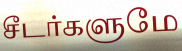
சீடர்களுமே